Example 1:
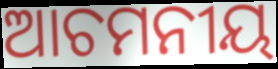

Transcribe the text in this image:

ଆଚମନୀୟ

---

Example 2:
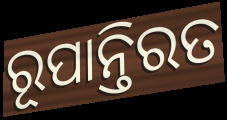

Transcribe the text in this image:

ରୂପାନ୍ତିରତ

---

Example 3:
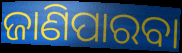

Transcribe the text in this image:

ଜାଣିପାରବା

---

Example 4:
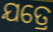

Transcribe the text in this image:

ଯତ୍ରେ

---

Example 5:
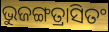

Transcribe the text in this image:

ଭୁଜଙ୍ଗତ୍ରାସିତଂ